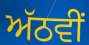
ਅੱਠਵੀਂ